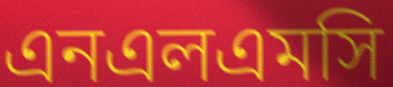
এনএলএমসি